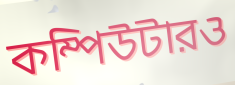
কম্পিউটারও